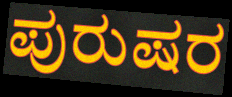
ಪುರುಷರ